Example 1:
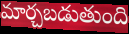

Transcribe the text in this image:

మార్చబడుతుంది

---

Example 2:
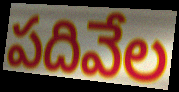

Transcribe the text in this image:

పదివేల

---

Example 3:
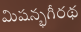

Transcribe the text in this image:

మిషన్భగీరథ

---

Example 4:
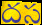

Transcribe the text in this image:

దస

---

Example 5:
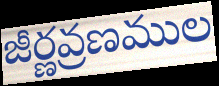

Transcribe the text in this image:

జీర్ణవ్రణముల